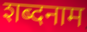
शब्दनाम